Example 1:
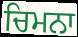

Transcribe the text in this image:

ਚਿਮਨਾ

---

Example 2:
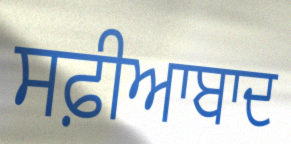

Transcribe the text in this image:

ਸਫ਼ੀਆਬਾਦ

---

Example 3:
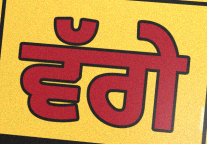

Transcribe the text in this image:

ਵੱਗੇ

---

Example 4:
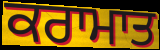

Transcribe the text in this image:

ਕਰਾਮਾਤ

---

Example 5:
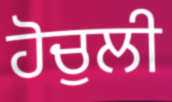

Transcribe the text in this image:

ਹੋਚੁਲੀ